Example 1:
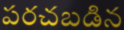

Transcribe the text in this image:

పరచబడిన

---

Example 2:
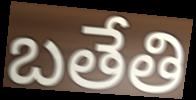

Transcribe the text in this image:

బతేతి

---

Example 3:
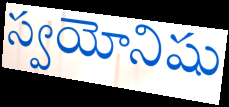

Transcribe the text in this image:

స్వయోనిషు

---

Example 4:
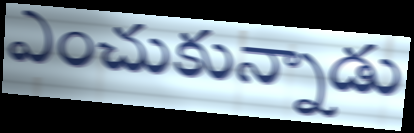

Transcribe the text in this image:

ఎంచుకున్నాడు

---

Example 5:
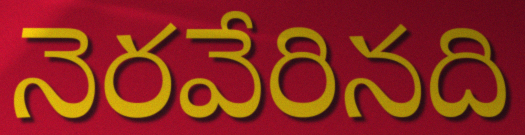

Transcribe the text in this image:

నెరవేరినది